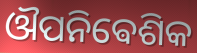
ଔପନିଵେଶିକ